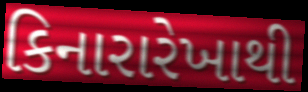
કિનારારેખાથી